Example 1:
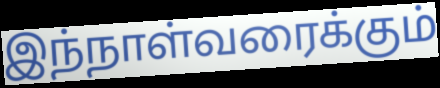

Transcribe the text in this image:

இந்நாள்வரைக்கும்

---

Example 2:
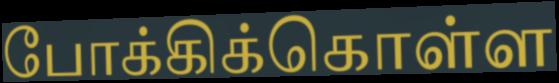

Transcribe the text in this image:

போக்கிக்கொள்ள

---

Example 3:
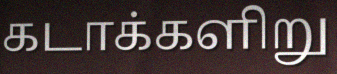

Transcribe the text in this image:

கடாக்களிறு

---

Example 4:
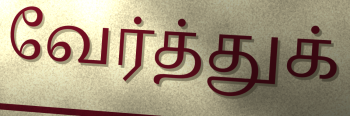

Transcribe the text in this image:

வேர்த்துக்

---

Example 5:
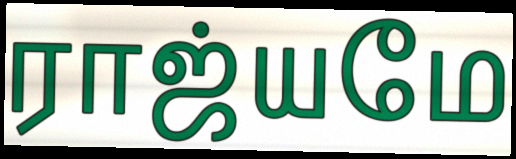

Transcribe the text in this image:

ராஜ்யமே